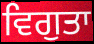
ਵਿਗੁਤਾ